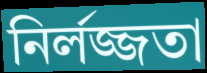
নির্লজ্জতা